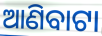
ଆଣିବାଟା